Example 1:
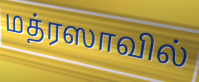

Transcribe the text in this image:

மத்ரஸாவில்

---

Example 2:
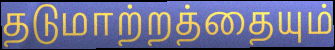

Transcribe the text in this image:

தடுமாற்றத்தையும்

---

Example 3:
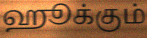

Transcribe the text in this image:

ஹூக்கும்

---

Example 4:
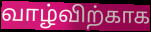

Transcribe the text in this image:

வாழ்விற்காக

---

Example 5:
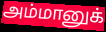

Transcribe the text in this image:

அம்மானுக்